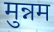
मुन्नम